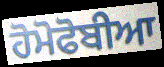
ਹੋਮੋਫੋਬੀਆ